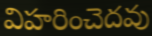
విహరించెదవు